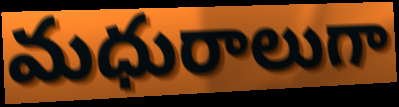
మధురాలుగా